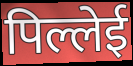
पिल्लेई